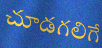
చూడగలిగే